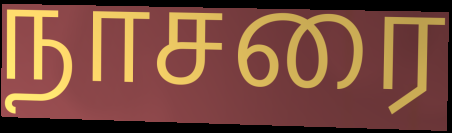
நாசரை